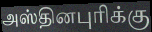
அஸ்தினபுரிக்கு